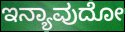
ಇನ್ಯಾವುದೋ